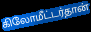
கிலோமீட்டர்தான்